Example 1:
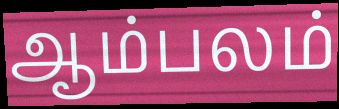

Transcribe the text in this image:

ஆம்பலம்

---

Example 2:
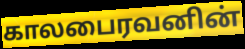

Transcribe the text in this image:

காலபைரவனின்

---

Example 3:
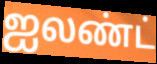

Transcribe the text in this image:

ஐலண்ட்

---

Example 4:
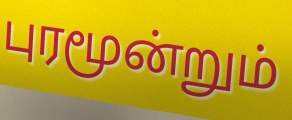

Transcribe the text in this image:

புரமூன்றும்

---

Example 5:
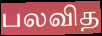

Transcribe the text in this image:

பலவித